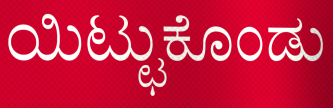
ಯಿಟ್ಟುಕೊಂಡು